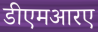
डीएमआरए